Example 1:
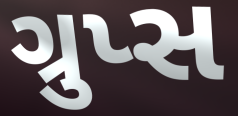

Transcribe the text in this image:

ગ્રુપ્સ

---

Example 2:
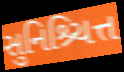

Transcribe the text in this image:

સુનિશ્ર્ચિત્ત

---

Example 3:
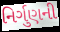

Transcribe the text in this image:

નિર્ગુણની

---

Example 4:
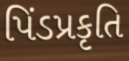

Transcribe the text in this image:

પિંડપ્રકૃતિ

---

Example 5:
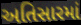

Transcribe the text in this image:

અતિસારમાં